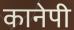
कानेपी